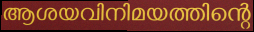
ആശയവിനിമയത്തിന്റെ